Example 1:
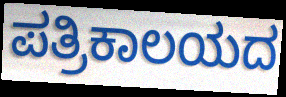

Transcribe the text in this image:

ಪತ್ರಿಕಾಲಯದ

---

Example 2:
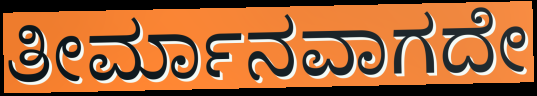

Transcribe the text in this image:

ತೀರ್ಮಾನವಾಗದೇ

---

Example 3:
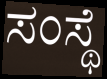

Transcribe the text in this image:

ಸಂಸ್ಥೆ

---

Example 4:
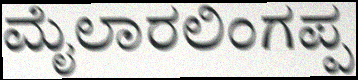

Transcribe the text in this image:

ಮೈಲಾರಲಿಂಗಪ್ಪ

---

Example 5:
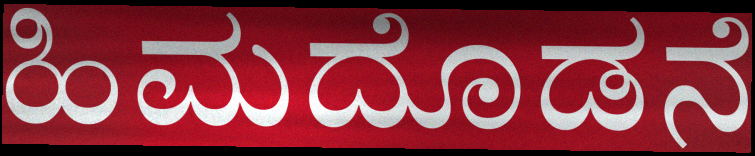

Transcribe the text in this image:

ಹಿಮದೊಡನೆ